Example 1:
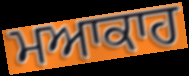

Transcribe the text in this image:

ਮਆਕਾਹ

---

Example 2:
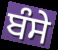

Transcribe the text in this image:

ਬੰਸੇ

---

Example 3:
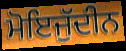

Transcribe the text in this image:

ਮੋਇਜੁੱਦੀਨ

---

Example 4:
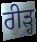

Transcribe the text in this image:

ਰੀੜ੍ਹ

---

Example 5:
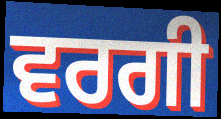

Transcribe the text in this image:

ਵਰਗੀ